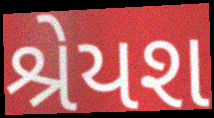
શ્રેયશ